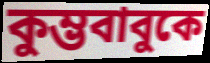
কুম্ভবাবুকে